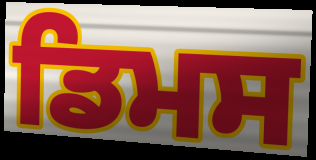
ਡਿਮਸ